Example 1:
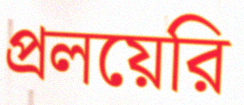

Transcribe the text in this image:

প্রলয়েরি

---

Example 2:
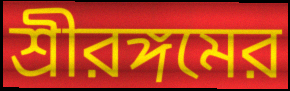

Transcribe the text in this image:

শ্রীরঙ্গমের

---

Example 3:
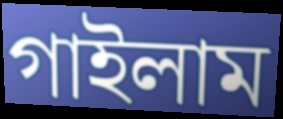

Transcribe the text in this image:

গাইলাম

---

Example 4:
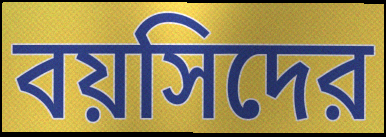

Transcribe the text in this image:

বয়সিদের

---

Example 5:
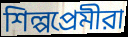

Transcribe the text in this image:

শিল্পপ্রেমীরা